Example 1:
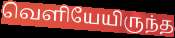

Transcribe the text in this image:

வெளியேயிருந்த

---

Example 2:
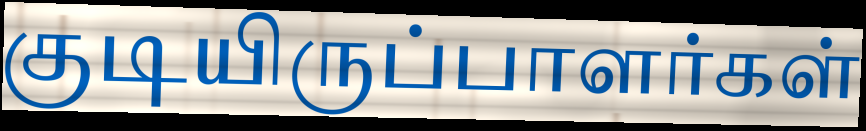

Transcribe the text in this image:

குடியிருப்பாளர்கள்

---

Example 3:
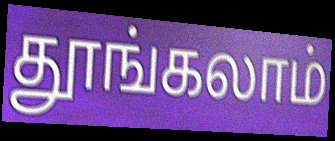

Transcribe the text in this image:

தூங்கலாம்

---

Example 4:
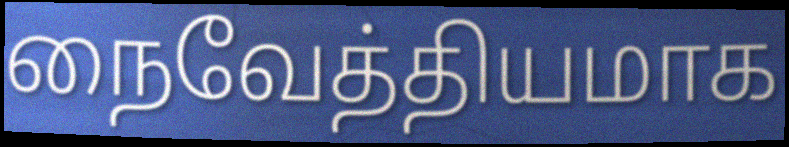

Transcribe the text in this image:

நைவேத்தியமாக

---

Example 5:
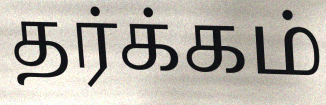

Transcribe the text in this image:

தர்க்கம்